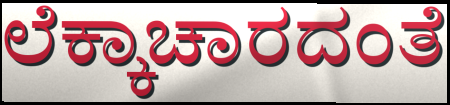
ಲೆಕ್ಕಾಚಾರದಂತೆ